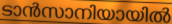
ടാൻസാനിയായിൽ